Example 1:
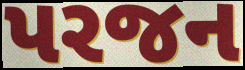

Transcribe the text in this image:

પરજન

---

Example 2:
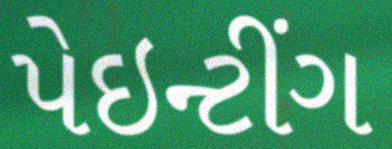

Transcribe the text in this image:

પેઇન્ટીંગ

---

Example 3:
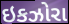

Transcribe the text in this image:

ઇકઝોરા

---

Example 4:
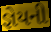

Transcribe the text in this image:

જ્ઞેયની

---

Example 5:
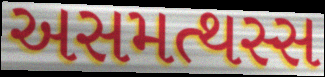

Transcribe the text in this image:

અસમત્થસ્સ